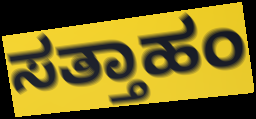
ಸತ್ತಾಹಂ